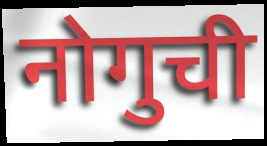
नोगुची